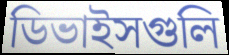
ডিভাইসগুলি